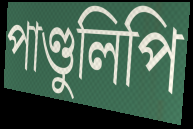
পাণ্ডুলিপি